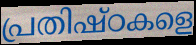
പ്രതിഷ്ഠകളെ